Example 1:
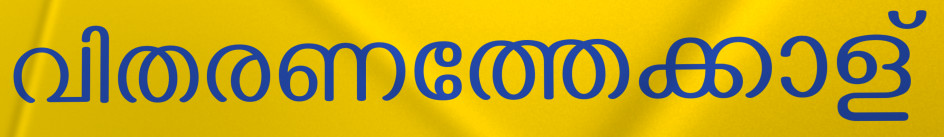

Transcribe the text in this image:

വിതരണത്തേക്കാള്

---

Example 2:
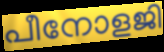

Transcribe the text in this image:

പീനോളജി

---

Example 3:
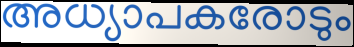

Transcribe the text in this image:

അധ്യാപകരോടും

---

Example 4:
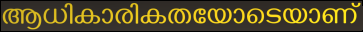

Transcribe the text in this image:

ആധികാരികതയോടെയാണ്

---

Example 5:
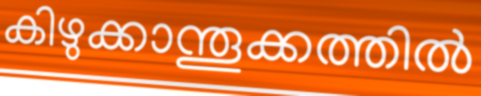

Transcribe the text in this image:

കിഴുക്കാന്തൂക്കത്തിൽ